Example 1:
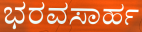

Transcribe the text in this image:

ಭರವಸಾರ್ಹ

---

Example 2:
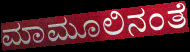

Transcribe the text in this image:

ಮಾಮೂಲಿನಂತೆ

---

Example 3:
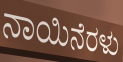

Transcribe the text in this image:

ನಾಯಿನೆರಳು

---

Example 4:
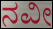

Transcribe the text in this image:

ನವೀ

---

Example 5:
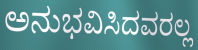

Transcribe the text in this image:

ಅನುಭವಿಸಿದವರಲ್ಲ